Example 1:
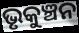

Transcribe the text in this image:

ଭୃକୁଞ୍ଚନ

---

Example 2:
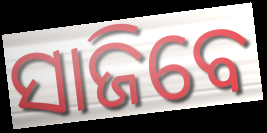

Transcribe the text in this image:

ସାଜିବେ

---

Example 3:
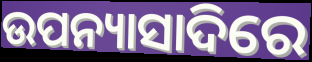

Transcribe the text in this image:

ଉପନ୍ୟାସାଦିରେ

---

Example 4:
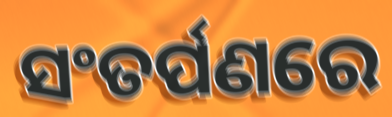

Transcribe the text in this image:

ସଂତର୍ପଣରେ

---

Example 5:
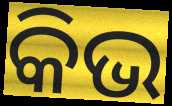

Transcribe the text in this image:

କିଭ